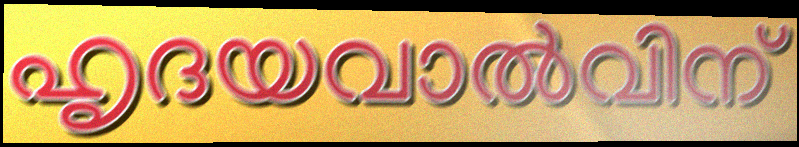
ഹൃദയവാൽവിന്